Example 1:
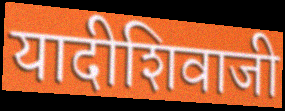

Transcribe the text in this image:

यादीशिवाजी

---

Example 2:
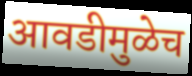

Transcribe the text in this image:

आवडीमुळेच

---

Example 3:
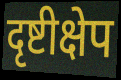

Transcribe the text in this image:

दृष्टीक्षेप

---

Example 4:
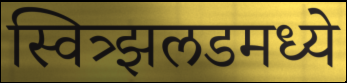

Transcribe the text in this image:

स्वित्र्झलडमध्ये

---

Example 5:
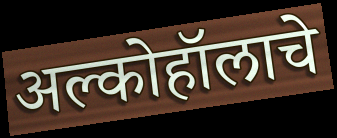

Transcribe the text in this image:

अल्कोहॉलाचे